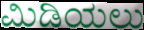
ಮಿಡಿಯಲು